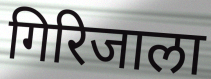
गिरिजाला